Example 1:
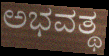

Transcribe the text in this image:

ಅಭವತ್ಥ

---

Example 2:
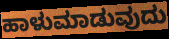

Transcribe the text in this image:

ಹಾಳುಮಾಡುವುದು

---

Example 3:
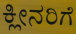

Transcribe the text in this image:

ಕ್ಲೀನರಿಗೆ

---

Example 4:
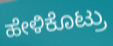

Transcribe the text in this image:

ಹೇಳಿಕೊಟ್ರು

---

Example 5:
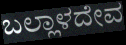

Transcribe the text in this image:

ಬಲ್ಲಾಳದೇವ